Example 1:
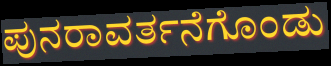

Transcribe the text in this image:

ಪುನರಾವರ್ತನೆಗೊಂಡು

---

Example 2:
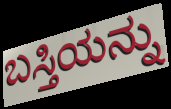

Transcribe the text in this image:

ಬಸ್ತಿಯನ್ನು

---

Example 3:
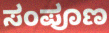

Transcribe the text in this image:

ಸಂಪೂಣ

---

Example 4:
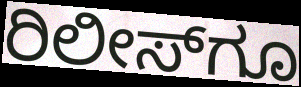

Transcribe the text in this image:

ರಿಲೀಸ್‌ಗೂ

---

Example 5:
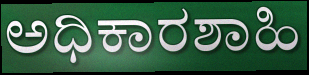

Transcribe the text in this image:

ಅಧಿಕಾರಶಾಹಿ